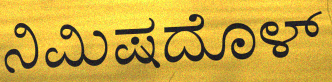
ನಿಮಿಷದೊಳ್